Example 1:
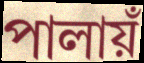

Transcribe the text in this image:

পালায়ঁ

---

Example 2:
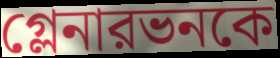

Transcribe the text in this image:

গ্লেনারভনকে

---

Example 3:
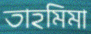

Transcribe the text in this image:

তাহমিমা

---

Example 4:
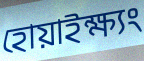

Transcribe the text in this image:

হোয়াইক্ষ্যং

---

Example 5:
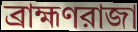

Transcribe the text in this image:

ব্রাহ্মণরাজা